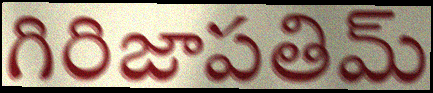
గిరిజాపతిమ్